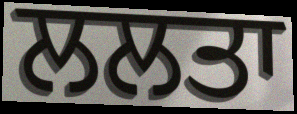
ਲਲਤਾ